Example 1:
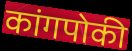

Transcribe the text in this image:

कांगपोकी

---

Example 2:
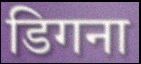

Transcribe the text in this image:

डिगना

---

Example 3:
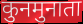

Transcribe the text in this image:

कुनमुनाता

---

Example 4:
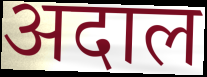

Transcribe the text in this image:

अदाल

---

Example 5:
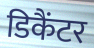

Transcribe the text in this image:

डिकैंटर